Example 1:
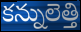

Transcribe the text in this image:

కన్నులెత్తి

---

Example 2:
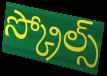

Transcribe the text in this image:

స్క్రోల్స్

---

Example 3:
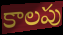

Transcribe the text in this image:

కాలపు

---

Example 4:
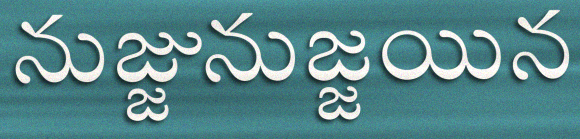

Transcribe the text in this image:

నుజ్జునుజ్జయిన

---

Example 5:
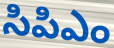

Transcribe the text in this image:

సిపిఎం